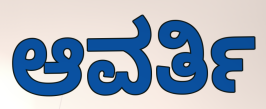
ಆವರ್ತಿ